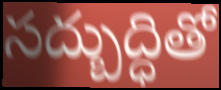
సద్బుద్ధితో